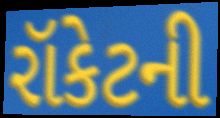
રૉકેટની